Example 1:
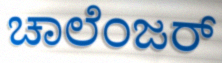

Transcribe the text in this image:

ಚಾಲೆಂಜರ್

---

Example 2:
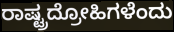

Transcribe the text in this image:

ರಾಷ್ಟ್ರದ್ರೋಹಿಗಳೆಂದು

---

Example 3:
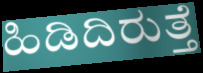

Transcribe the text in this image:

ಹಿಡಿದಿರುತ್ತೆ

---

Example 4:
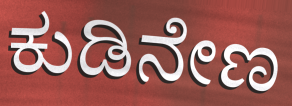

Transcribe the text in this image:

ಕುಡಿನೇಣ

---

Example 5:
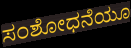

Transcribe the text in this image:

ಸಂಶೋಧನೆಯೂ